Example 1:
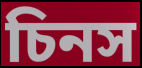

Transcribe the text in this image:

চিনস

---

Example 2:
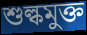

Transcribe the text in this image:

শুল্কমুক্ত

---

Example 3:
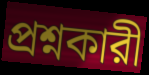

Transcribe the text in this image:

প্রশ্নকারী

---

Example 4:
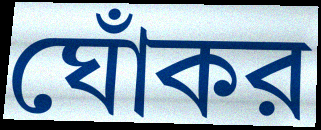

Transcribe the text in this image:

ঘোঁকর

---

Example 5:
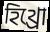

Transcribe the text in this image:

হিথ্রো